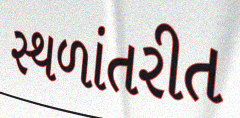
સ્થળાંતરીત